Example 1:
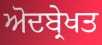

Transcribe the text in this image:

ਅੋਦਬ੍ਰੇਖਤ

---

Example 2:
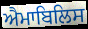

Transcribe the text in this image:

ਐਮਾਬਿਲਿਸ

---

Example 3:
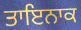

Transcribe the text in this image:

ਤਾਇਨਾਕ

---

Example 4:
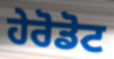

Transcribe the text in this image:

ਹੇਰੋਡੋਟ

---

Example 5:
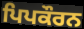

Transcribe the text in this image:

ਪਿਪਕੌਰਨ